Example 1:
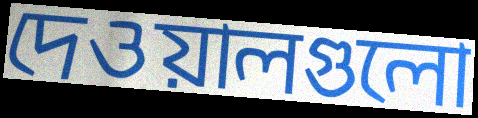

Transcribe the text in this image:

দেওয়ালগুলো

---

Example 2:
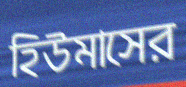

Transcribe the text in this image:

হিউমাসের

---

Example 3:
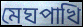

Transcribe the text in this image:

মেঘপাখি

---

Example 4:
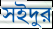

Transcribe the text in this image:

সইদুর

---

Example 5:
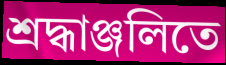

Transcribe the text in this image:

শ্রদ্ধাঞ্জলিতে